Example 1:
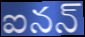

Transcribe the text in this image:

ఐనన్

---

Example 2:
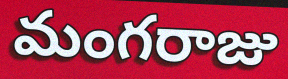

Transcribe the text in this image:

మంగరాజు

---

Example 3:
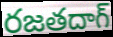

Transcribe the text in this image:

రజతదాగ్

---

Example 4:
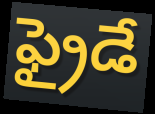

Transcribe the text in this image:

ఫ్రైడే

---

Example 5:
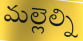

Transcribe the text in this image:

మల్లెల్ని